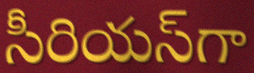
సీరియస్‌గా